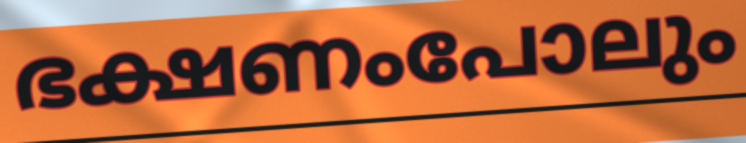
ഭക്ഷണംപോലും